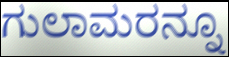
ಗುಲಾಮರನ್ನೂ